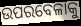
ଉପରବେଳାକୁ